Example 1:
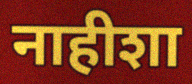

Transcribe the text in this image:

नाहीशा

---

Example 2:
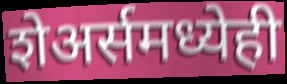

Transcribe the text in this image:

शेअर्समध्येही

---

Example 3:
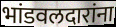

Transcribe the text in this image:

भांडवलदारांना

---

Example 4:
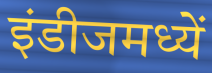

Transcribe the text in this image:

इंडीजमध्यें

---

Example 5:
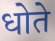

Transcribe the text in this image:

धोते